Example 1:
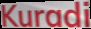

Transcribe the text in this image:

Kuradi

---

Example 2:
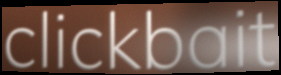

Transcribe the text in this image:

clickbait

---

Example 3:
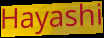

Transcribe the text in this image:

Hayashi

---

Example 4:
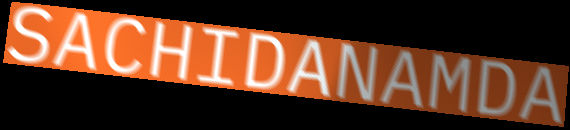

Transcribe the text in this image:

SACHIDANAMDA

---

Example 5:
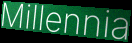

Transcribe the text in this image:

Millennia